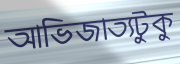
আভিজাত্যটুকু